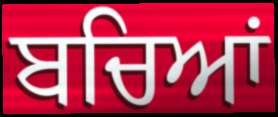
ਬਚਿਆਂ